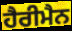
ਹੈਰੀਮੈਨ